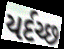
યર્દચ્છ